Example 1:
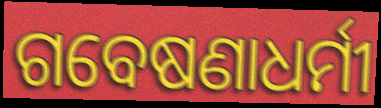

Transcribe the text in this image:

ଗବେଷଣାଧର୍ମୀ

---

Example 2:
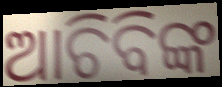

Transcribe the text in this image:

ଆଚିବିଙ୍କ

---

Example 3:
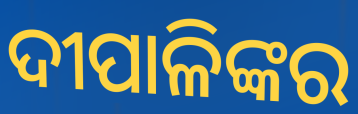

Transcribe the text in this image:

ଦୀପାଳିଙ୍କର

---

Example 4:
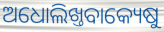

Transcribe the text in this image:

ଅଧୋଲିଖ୍ତବାକ୍ୟେଷୁ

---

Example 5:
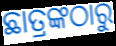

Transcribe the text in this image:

ଛାତ୍ରଙ୍କଠାରୁ